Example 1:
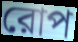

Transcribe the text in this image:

রোপ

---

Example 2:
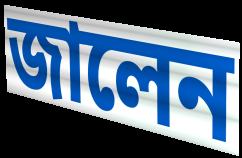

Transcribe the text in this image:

জালেন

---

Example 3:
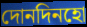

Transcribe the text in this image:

দোনদিনহো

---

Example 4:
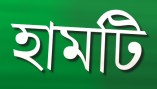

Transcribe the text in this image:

হামটি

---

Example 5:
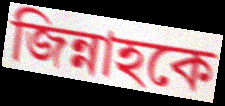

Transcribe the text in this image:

জিন্নাহকে